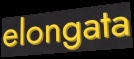
elongata